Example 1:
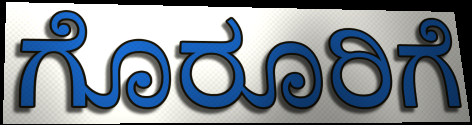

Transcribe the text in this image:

ಗೊರೂರಿಗೆ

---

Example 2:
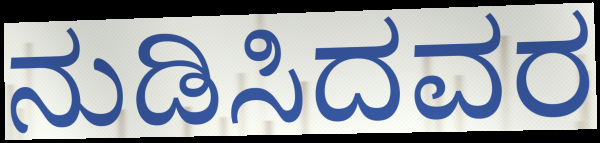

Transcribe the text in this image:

ನುಡಿಸಿದವರ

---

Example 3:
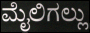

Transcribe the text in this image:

ಮೈಲಿಗಲ್ಲು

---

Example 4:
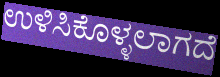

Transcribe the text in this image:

ಉಳಿಸಿಕೊಳ್ಳಲಾಗದೆ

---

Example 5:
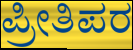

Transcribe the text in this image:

ಪ್ರೀತಿಪರ